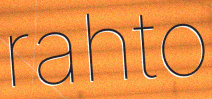
rahto